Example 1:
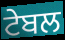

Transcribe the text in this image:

ਟੇਬਲ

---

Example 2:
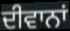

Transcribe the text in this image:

ਦੀਵਾਨਾਂ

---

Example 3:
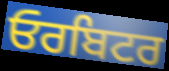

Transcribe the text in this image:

ਓਰਬਿਟਰ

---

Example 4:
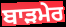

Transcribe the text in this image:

ਬਾੜਮੇਰ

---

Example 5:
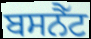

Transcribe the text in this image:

ਬਸਨੈੱਟ